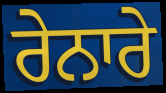
ਰੇਨਾਰੇ